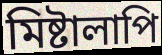
মিষ্টালাপি